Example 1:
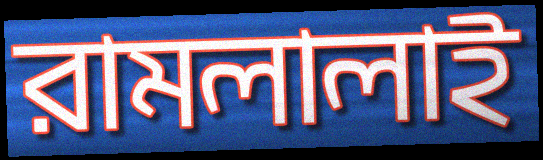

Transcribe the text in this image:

রামলালাই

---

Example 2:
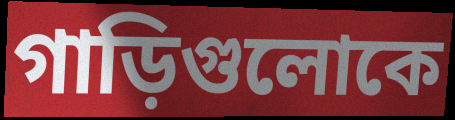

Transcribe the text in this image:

গাড়িগুলোকে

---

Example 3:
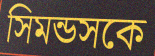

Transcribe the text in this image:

সিমন্ডসকে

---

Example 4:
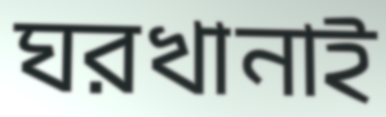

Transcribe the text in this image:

ঘরখানাই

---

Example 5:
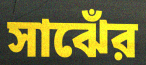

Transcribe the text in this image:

সাঝেঁর